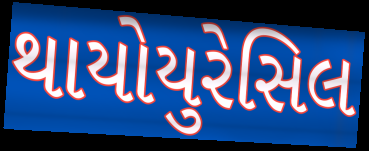
થાયોયુરેસિલ